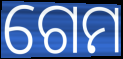
ଗେମ